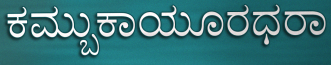
ಕಮ್ಬುಕಾಯೂರಧರಾ